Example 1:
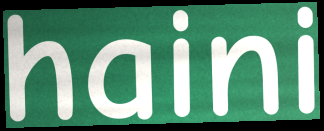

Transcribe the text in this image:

haini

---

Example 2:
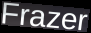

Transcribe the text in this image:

Frazer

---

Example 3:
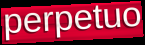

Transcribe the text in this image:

perpetuo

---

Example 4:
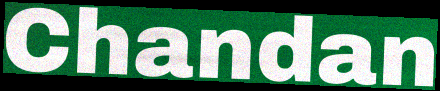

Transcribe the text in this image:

Chandan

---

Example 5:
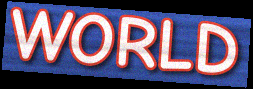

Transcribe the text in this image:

WORLD